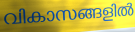
വികാസങ്ങളിൽ